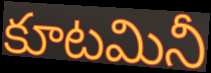
కూటమినీ